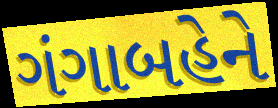
ગંગાબહેને